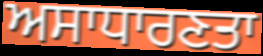
ਅਸਾਧਾਰਣਤਾ